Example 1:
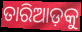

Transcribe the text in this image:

ତାରିଆଡ଼କୁ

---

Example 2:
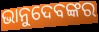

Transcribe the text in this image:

ଭାନୁଦେବଙ୍କର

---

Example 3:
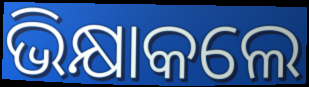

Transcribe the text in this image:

ଭିକ୍ଷାକଲେ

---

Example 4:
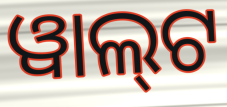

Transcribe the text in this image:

ୱାଲ୍‌ଟ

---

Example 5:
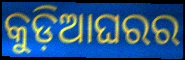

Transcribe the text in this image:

କୁଡ଼ିଆଘରର